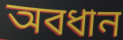
অবধান